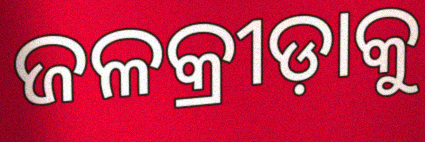
ଜଳକ୍ରୀଡ଼ାକୁ